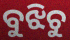
ବୁଝିଚୁ